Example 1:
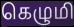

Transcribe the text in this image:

கெழுமி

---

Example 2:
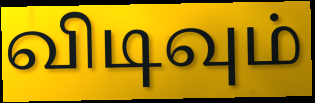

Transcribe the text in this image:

விடிவும்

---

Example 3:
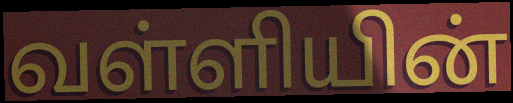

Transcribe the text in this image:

வள்ளியின்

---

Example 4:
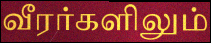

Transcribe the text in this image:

வீரர்களிலும்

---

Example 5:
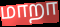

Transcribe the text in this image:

மாறா